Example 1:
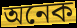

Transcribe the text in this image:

অনেক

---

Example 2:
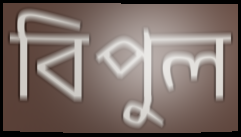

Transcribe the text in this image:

বিপুল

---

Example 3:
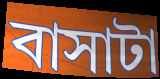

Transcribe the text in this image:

বাসাটা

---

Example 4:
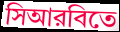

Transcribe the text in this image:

সিআরবিতে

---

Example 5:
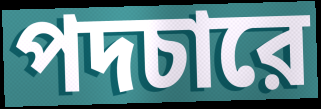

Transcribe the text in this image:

পদচারে